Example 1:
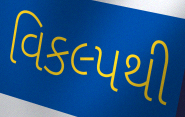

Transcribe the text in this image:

વિકલ્પથી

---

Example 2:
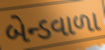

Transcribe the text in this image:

બેન્ડવાળા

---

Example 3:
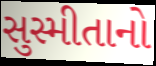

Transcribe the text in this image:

સુસ્મીતાનો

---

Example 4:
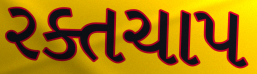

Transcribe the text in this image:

રક્તચાપ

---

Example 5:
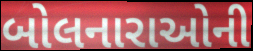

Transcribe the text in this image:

બોલનારાઓની